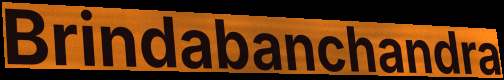
Brindabanchandra